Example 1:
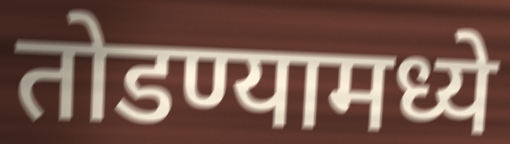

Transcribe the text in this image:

तोडण्यामध्ये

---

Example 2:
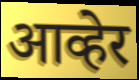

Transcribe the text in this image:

आव्हेर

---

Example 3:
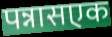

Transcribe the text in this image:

पन्नासएक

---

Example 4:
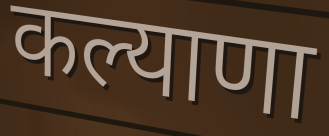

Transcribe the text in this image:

कल्याणा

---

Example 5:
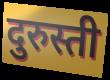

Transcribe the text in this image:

दुरुस्ती